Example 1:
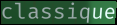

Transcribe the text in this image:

classique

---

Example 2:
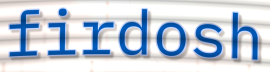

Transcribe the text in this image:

firdosh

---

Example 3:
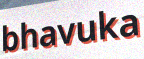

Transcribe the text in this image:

bhavuka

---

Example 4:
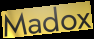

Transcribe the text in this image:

Madox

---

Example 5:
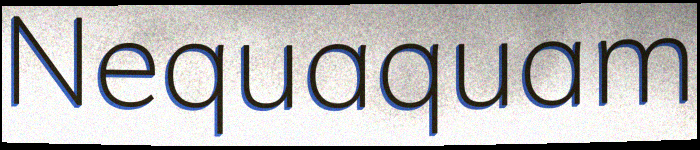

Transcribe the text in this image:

Nequaquam